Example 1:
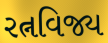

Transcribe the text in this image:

રત્નવિજ્ય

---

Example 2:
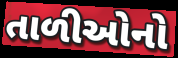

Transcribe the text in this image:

તાળીઓનો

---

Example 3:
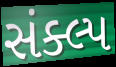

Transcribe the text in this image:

સંક્લ્પ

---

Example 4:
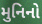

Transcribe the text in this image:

મુનિનો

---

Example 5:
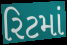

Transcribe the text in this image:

રિટમાં